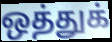
ஒத்துக்